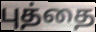
புத்தை